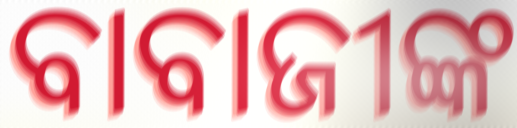
ବାବାଜୀଙ୍କ